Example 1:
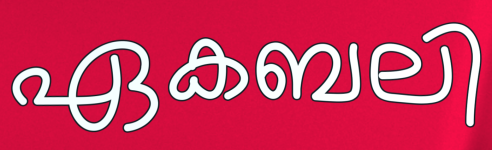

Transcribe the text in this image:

ഏകബലി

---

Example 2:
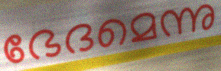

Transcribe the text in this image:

ഭേദമെന്നു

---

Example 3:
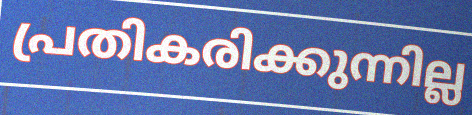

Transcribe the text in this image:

പ്രതികരിക്കുന്നില്ല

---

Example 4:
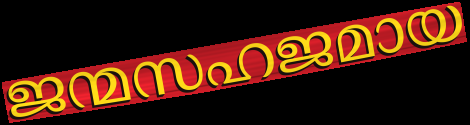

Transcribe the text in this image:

ജന്മസഹജമായ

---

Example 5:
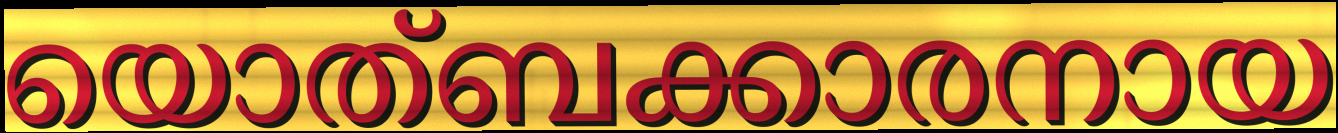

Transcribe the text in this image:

യൊത്ബക്കാരനായ